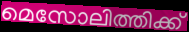
മെസോലിത്തിക്ക്